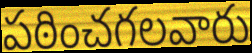
పఠించగలవారు